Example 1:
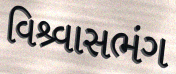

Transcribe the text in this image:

વિશ્ર્વાસભંગ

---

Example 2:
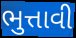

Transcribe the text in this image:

ભુત્તાવી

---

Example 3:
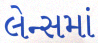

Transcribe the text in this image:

લેન્સમાં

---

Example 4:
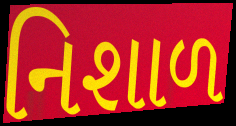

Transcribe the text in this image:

નિશાળ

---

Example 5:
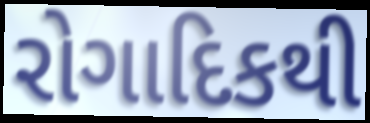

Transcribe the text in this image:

રોગાદિકથી